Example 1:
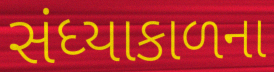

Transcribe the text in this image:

સંધ્યાકાળના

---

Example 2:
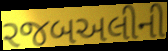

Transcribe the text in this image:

રજબઅલીની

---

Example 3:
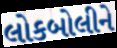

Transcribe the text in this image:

લોકબોલીને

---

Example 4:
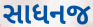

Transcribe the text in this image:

સાધનજ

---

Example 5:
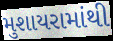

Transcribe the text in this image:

મુશાયરામાંથી